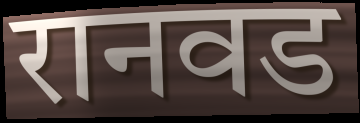
रानवड